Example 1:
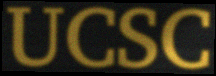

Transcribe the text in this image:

UCSC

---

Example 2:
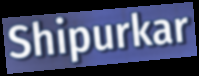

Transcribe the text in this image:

Shipurkar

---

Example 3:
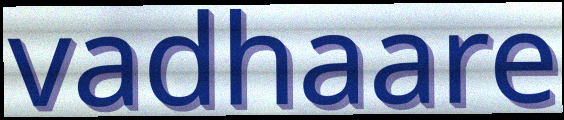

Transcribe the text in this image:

vadhaare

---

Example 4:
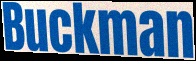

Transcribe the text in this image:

Buckman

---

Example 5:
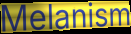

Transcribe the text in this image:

Melanism